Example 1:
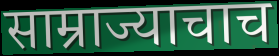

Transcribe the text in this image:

साम्राज्याचाच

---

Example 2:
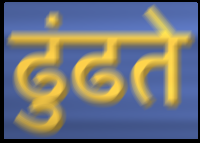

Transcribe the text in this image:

ढुंढते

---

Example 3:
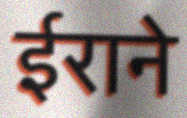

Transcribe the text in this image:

ईराने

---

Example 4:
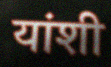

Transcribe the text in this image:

यांशी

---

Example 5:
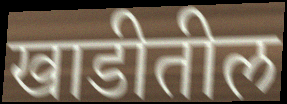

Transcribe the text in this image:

खाडीतील